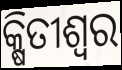
କ୍ଷିତୀଶ୍ୱର